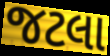
જટલા